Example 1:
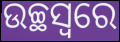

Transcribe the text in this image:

ଉଚ୍ଛସ୍ୱରେ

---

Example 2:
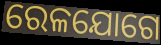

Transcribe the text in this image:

ରେଳଯୋଗେ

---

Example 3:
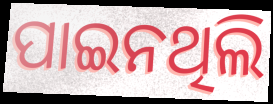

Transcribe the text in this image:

ପାଇନଥିଲି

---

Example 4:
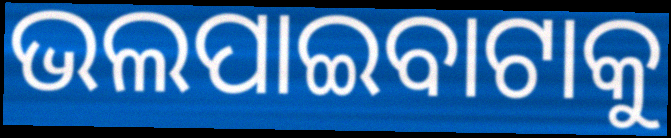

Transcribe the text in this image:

ଭଲପାଇବାଟାକୁ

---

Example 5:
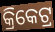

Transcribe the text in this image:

କ୍ରିକେଟ୍ର